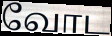
வோட